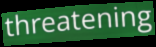
threatening